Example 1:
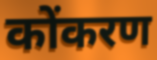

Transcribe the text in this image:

कोंकरण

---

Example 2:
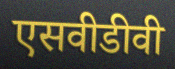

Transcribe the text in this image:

एसवीडीवी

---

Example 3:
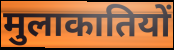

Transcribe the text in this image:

मुलाकातियों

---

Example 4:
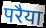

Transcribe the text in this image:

परैया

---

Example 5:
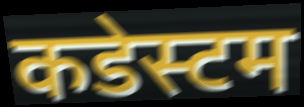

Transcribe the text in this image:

कडेस्टम